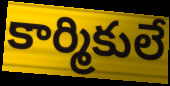
కార్మికులే